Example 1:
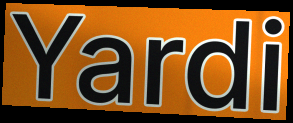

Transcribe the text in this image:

Yardi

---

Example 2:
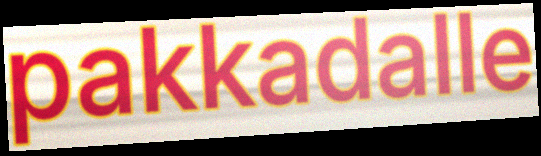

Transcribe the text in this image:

pakkadalle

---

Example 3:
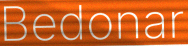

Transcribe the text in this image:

Bedonar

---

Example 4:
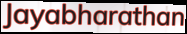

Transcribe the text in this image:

Jayabharathan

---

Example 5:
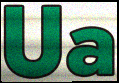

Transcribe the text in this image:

Ua